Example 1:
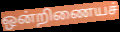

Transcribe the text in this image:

ஒன்றிணையச்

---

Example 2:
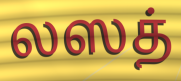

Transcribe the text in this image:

லஸத்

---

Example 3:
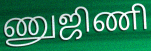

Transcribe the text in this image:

ணுஜிணி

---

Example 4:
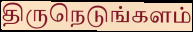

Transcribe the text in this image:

திருநெடுங்களம்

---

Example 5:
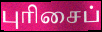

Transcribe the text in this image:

புரிசைப்